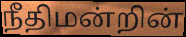
நீதிமன்றின்